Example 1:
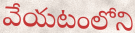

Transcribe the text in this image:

వేయటంలోని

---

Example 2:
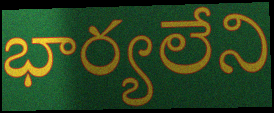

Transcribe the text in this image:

భార్యలేని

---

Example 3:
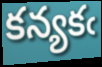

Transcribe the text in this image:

కన్యకఁ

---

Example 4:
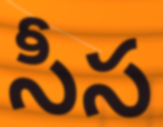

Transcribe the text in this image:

సీస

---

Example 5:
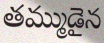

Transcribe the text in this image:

తమ్ముడైన